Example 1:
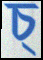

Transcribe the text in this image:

চ্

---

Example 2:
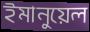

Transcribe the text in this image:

ইমানুয়েল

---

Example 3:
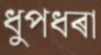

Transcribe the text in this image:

ধুপধৰা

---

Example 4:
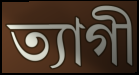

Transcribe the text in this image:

ত্যাগী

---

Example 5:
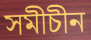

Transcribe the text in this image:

সমীচীন